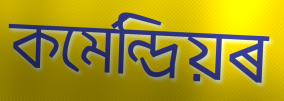
কৰ্মেন্দ্ৰিয়ৰ